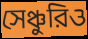
সেঞ্চুরিও